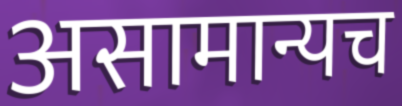
असामान्यच